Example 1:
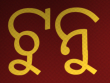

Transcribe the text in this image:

ଟୁନୁ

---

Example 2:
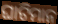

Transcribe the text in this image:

ଘାଟିମାନ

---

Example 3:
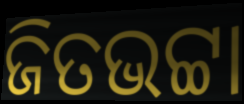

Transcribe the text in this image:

ଜିତଭଟ୍ଟା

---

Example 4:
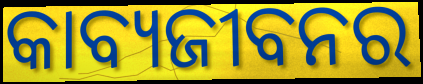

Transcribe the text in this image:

କାବ୍ୟଜୀବନର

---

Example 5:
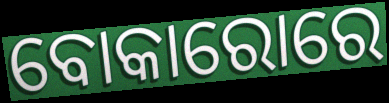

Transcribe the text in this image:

ବୋକାରୋରେ